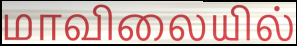
மாவிலையில்